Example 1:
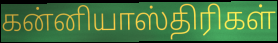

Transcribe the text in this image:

கன்னியாஸ்திரிகள்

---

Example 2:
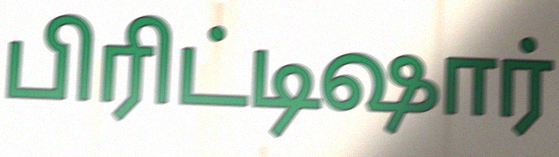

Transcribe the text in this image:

பிரிட்டிஷார்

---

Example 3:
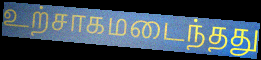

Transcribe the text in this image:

உற்சாகமடைந்தது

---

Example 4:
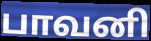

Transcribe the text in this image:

பாவனி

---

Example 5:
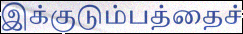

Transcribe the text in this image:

இக்குடும்பத்தைச்